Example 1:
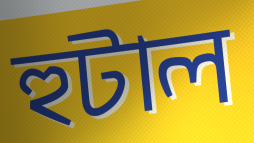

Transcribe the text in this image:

হুটাল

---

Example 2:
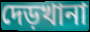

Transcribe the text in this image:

দেড়খানা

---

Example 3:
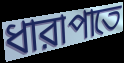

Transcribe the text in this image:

ধারাপাতে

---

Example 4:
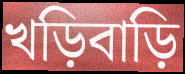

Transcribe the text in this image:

খড়িবাড়ি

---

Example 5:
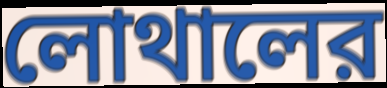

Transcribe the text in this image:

লোথালের